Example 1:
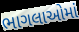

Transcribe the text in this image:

ભાગલાઓમાં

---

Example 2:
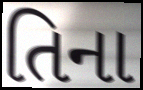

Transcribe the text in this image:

તિના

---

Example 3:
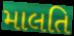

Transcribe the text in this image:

માલતિ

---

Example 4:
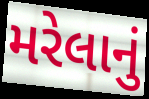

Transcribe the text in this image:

મરેલાનું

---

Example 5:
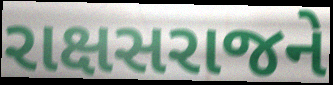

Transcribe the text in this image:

રાક્ષસરાજને